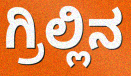
ಗ್ರಿಲ್ಲಿನ